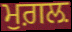
ਮੁਗ਼ਲ਼